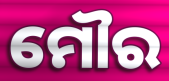
ମୌର